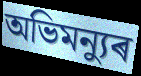
অভিমন্যুৰ